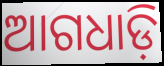
ଆଗଧାଡ଼ି